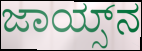
ಜಾಯ್ಸ್‌ನ